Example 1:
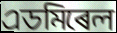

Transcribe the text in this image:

এডমিৰেল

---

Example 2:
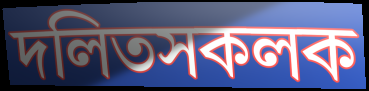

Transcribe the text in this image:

দলিতসকলক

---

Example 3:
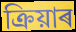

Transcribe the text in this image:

ক্ৰিয়াৰ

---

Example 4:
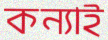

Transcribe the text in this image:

কন্যাই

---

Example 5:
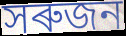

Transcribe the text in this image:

সৰুজন